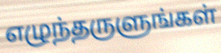
எழுந்தருளுங்கள்